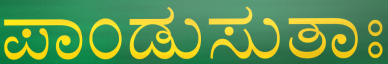
ಪಾಂಡುಸುತಾಃ